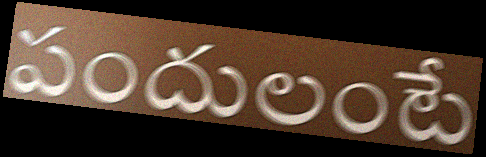
పందులంటే